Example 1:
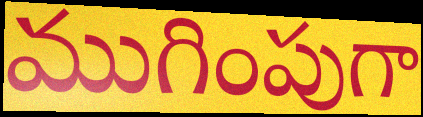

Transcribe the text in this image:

ముగింపుగా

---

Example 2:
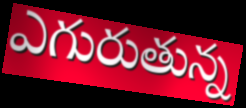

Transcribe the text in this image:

ఎగురుతున్న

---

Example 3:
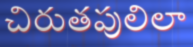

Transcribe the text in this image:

చిరుతపులిలా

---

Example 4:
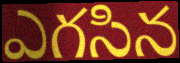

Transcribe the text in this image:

ఎగసిన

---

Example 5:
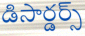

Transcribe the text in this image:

డిసార్డర్స్